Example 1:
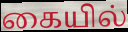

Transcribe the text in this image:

கையில்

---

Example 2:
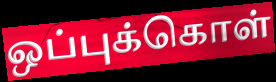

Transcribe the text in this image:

ஒப்புக்கொள்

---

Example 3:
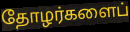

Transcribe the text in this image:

தோழர்களைப்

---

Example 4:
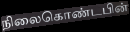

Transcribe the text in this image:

நிலைகொண்டபின்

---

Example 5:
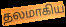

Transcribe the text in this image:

தலமாகிய